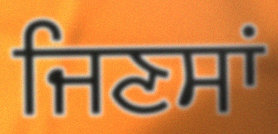
ਜਿਣਸਾਂ